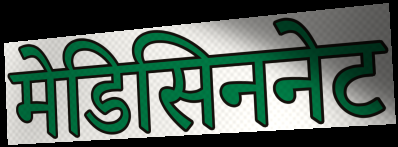
मेडिसिननेट